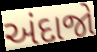
અંદાજો